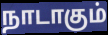
நாடாகும்